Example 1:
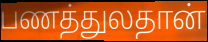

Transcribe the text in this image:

பணத்துலதான்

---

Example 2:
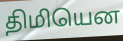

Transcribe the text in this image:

திமியென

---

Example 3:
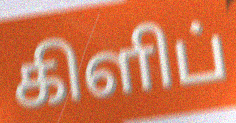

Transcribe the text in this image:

கிளிப்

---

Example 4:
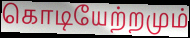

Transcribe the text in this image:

கொடியேற்றமும்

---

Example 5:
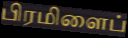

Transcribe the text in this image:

பிரமிளைப்